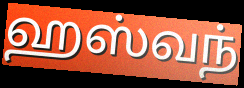
ஹஸ்வந்